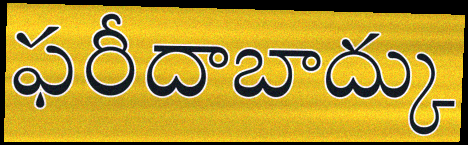
ఫరీదాబాద్కు